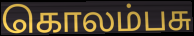
கொலம்பசு